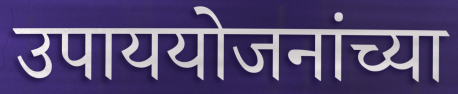
उपाययोजनांच्या